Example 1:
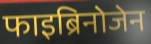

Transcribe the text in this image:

फाइब्रिनोजेन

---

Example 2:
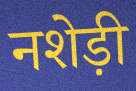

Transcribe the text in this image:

नशेड़ी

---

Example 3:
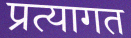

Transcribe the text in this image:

प्रत्यागत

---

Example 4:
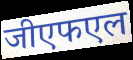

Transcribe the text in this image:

जीएफएल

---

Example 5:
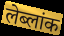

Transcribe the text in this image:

लेब्लांक